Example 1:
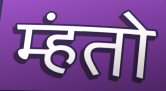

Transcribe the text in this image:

म्हंतो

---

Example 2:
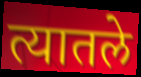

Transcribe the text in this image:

त्यातले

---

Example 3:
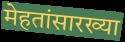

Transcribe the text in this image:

मेहतांसारख्या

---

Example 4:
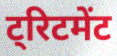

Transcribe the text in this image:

ट्रिटमेंट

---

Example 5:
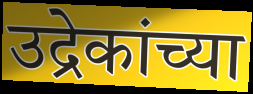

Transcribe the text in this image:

उद्रेकांच्या